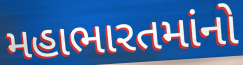
મહાભારતમાંનો